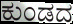
ಕುಂಡದ